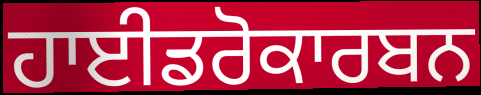
ਹਾਈਡਰੋਕਾਰਬਨ